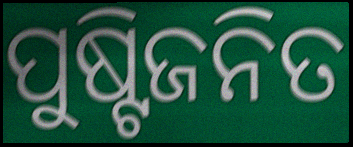
ପୁଷ୍ଟିଜନିତ